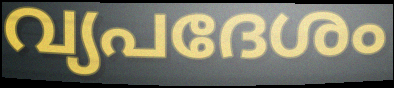
വ്യപദേശം